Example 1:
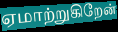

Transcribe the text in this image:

ஏமாற்றுகிறேன்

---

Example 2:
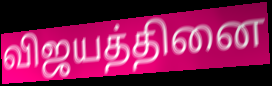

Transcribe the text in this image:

விஜயத்தினை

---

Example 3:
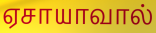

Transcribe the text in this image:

ஏசாயாவால்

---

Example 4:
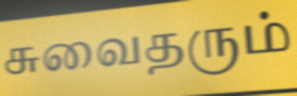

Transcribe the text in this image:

சுவைதரும்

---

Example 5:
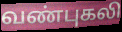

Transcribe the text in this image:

வண்புகலி